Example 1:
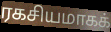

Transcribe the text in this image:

ரகசியமாகக்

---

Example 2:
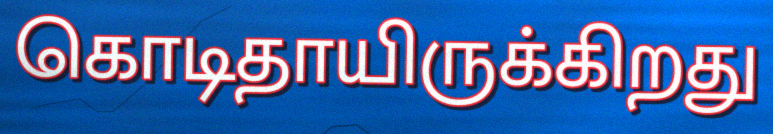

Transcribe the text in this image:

கொடிதாயிருக்கிறது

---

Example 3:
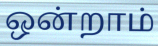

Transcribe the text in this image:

ஒன்றாம்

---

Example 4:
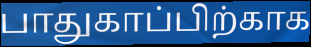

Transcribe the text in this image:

பாதுகாப்பிற்காக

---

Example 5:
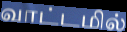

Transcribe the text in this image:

வாட்டமில்